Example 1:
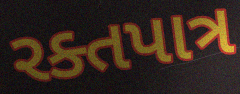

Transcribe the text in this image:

રક્તપાત્ર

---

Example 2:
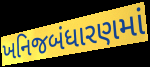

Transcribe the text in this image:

ખનિજબંધારણમાં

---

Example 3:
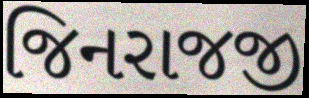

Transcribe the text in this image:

જિનરાજજી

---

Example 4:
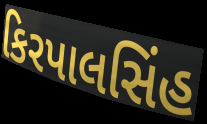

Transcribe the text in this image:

કિરપાલસિંહ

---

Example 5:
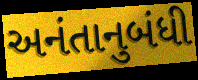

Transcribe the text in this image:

અનંતાનુબંધી